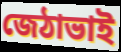
জেঠাভাই